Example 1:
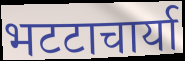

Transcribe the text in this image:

भटटाचार्या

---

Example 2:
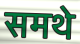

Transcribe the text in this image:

समथे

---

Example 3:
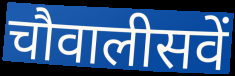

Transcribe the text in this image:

चौवालीसवें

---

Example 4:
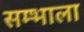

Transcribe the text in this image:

सम्भाला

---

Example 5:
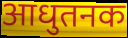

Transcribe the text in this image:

आधुतनक